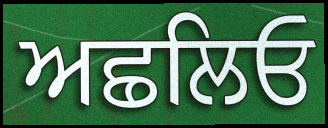
ਅਛਲਿਓ